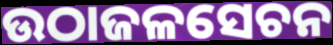
ଉଠାଜଳସେଚନ